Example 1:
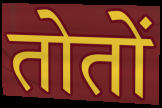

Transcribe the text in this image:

तोतों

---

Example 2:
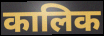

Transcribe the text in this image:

कालिक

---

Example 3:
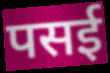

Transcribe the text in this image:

पसई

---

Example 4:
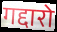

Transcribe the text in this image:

गद्दारो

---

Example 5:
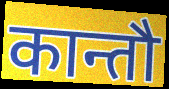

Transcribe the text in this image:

कान्तौ